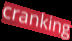
cranking